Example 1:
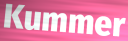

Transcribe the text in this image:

Kummer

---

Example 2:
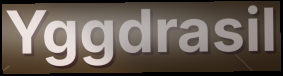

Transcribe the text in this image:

Yggdrasil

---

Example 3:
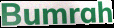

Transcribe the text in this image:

Bumrah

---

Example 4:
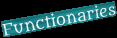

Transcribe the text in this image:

Functionaries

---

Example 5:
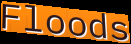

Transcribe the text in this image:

Floods